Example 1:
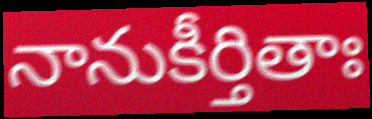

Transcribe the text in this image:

నానుకీర్తితాః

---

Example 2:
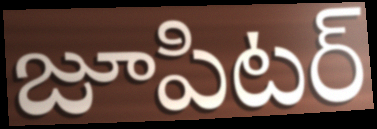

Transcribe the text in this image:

జూపిటర్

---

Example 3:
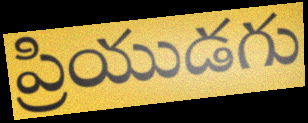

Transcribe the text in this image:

ప్రియుడగు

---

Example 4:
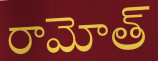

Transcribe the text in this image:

రామోత్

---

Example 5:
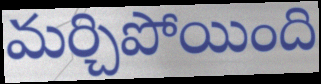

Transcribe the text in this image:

మర్చిపోయింది